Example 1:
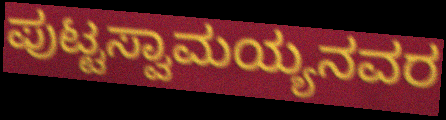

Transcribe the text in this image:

ಪುಟ್ಟಸ್ವಾಮಯ್ಯನವರ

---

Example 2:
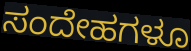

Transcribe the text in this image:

ಸಂದೇಹಗಳೂ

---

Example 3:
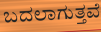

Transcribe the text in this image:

ಬದಲಾಗುತ್ತವೆ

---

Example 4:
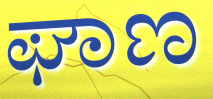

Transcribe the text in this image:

ಘಾಣ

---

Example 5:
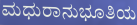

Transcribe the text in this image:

ಮಧುರಾನುಭೂತಿಯ